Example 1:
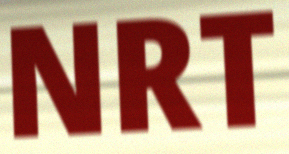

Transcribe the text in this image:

NRT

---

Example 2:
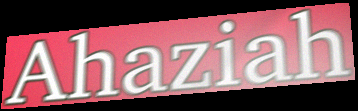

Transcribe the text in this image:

Ahaziah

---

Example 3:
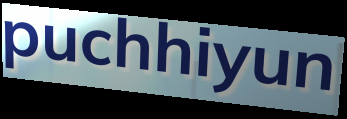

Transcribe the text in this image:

puchhiyun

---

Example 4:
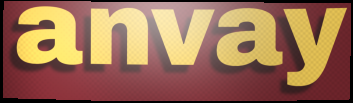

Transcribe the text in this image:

anvay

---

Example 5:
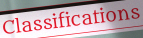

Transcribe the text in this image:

Classifications